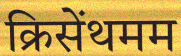
क्रिसेंथमम